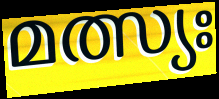
മത്സ്യഃ